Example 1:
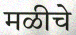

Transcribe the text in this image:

मळीचे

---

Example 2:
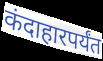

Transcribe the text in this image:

कंदाहारपर्यंत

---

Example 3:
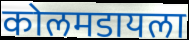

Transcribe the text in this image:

कोलमडायला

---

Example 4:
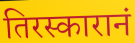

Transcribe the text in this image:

तिरस्कारानं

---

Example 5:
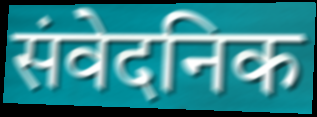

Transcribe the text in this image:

संवेदनिक